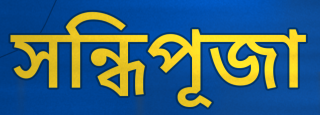
সন্ধিপূজা